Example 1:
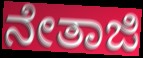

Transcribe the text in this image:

ನೇತಾಜಿ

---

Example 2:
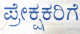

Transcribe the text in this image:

ಪ್ರೇಕ್ಷಕರಿಗೆ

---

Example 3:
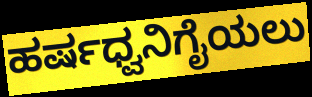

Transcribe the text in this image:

ಹರ್ಷಧ್ವನಿಗೈಯಲು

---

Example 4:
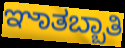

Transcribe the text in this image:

ಞಾತಬ್ಬಾತಿ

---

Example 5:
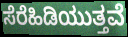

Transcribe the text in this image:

ಸೆರೆಹಿಡಿಯುತ್ತವೆ